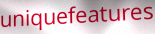
uniquefeatures